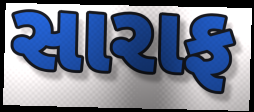
સારાફ